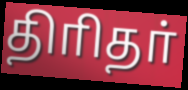
திரிதர்